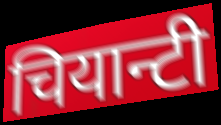
चियान्टी